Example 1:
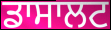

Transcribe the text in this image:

ਡਾਸਾਲਟ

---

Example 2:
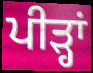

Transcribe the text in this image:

ਪੀੜ੍ਹਾਂ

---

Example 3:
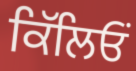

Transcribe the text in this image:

ਕਿੱਲਿਓਂ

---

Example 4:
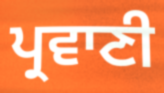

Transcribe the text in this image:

ਪ੍ਰਵਾਣੀ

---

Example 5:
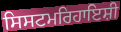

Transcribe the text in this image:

ਸਿਸਟਮਰਿਹਾਇਸ਼ੀ